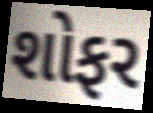
શોફર